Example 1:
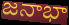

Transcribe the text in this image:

జనాభా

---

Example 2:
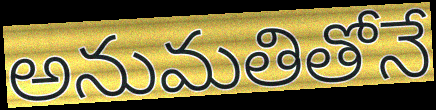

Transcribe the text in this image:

అనుమతితోనే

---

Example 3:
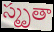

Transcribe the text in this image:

స్మృతా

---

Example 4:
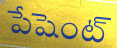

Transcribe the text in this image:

పేషెంట్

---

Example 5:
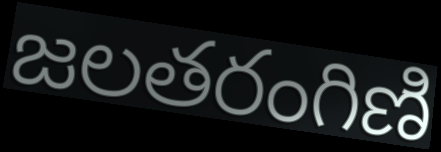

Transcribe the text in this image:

జలతరంగిణి